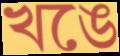
খঙে